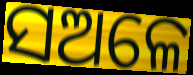
ସଅଳେ